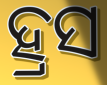
ହ୍ରସ